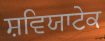
ਸ਼ਵਿਯਾਟੇਕ